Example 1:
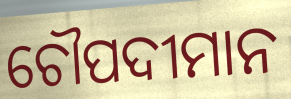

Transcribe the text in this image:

ଚୌପଦୀମାନ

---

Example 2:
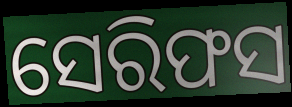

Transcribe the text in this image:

ସେରିଫସ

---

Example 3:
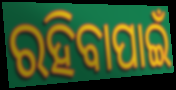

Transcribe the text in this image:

ରହିବାପାଇଁ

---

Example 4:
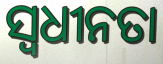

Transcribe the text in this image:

ସ୍ୱଧୀନତା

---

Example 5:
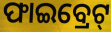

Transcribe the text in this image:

ଫାଇବ୍ରେଟ୍